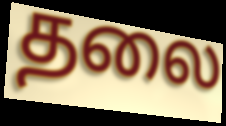
தலை